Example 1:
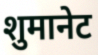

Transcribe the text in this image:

शुमानेट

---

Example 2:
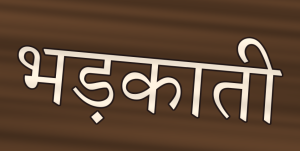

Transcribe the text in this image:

भड़काती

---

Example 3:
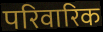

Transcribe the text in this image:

परिवारिक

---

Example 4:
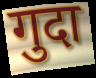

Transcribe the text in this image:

गुदा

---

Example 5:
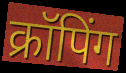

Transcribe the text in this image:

क्रॉपिंग